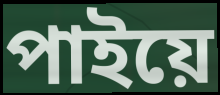
পাইয়ে